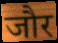
जौर